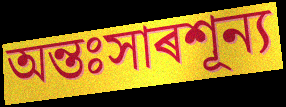
অন্তঃসাৰশূন্য